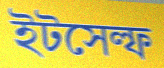
ইটসেল্ফ